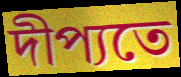
দীপ্যতে